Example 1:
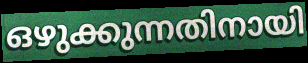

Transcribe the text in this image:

ഒഴുക്കുന്നതിനായി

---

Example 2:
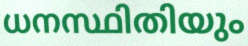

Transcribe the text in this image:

ധനസ്ഥിതിയും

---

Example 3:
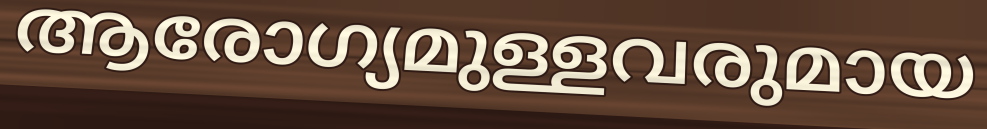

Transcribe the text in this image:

ആരോഗ്യമുള്ളവരുമായ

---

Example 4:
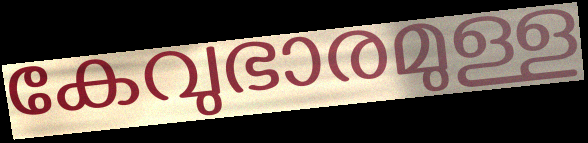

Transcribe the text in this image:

കേവുഭാരമുള്ള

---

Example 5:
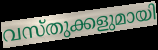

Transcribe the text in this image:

വസ്തുക്കളുമായി